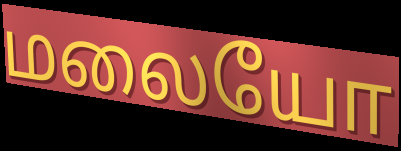
மலையோ